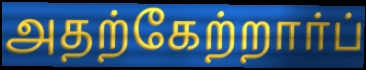
அதற்கேற்றார்ப்